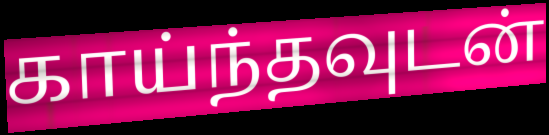
காய்ந்தவுடன்